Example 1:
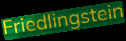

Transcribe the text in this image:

Friedlingstein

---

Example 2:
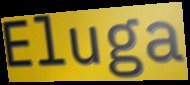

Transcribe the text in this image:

Eluga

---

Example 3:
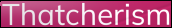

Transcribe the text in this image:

Thatcherism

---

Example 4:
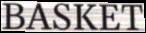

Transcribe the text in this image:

BASKET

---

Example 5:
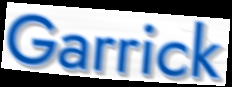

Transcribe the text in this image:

Garrick